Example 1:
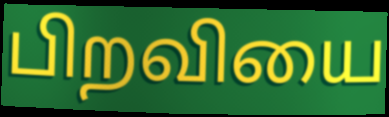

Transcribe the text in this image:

பிறவியை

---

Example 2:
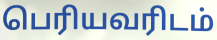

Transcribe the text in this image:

பெரியவரிடம்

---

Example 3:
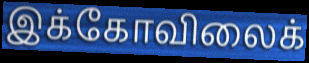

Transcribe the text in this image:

இக்கோவிலைக்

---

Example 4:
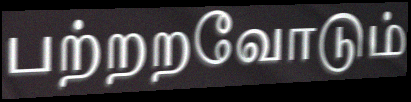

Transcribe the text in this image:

பற்றறவோடும்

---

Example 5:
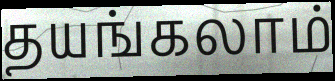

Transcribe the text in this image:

தயங்கலாம்